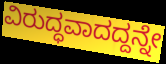
ವಿರುದ್ಧವಾದದ್ದನ್ನೇ